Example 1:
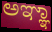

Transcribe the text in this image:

ಅಞ್ಞಾ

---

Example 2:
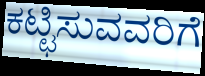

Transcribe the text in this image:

ಕಟ್ಟಿಸುವವರಿಗೆ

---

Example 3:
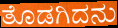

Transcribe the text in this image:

ತೊಡಗಿದನು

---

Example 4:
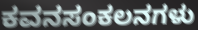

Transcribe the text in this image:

ಕವನಸಂಕಲನಗಳು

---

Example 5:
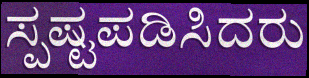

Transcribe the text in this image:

ಸ್ಪಷ್ಟಪಡಿಸಿದರು